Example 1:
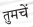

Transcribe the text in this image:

तुमचें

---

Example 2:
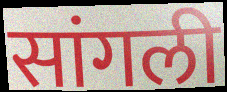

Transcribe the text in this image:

सांगली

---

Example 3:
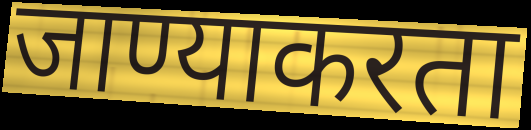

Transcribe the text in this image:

जाण्याकरता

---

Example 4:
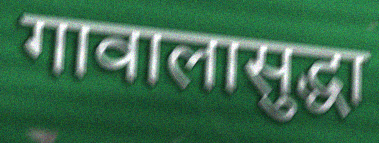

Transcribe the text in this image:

गावालासुद्धा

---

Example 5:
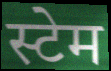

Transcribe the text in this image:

स्टेम